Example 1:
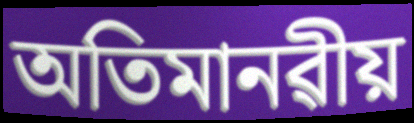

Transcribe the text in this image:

অতিমানৱীয়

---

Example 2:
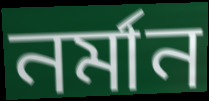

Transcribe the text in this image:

নৰ্মান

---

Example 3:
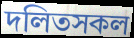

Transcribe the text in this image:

দলিতসকল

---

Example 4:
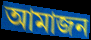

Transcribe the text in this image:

আমাজন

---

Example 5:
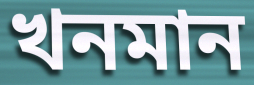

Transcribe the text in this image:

খনমান